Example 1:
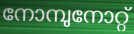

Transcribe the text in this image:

നോമ്പുനോറ്റ്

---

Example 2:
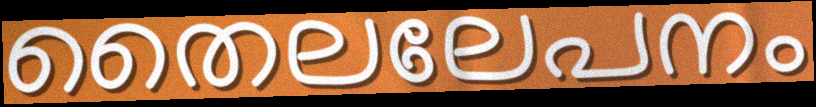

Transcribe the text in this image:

തൈലലേപനം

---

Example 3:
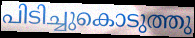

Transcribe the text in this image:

പിടിച്ചുകൊടുത്തു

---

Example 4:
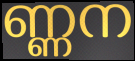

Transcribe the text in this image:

ണ്ണന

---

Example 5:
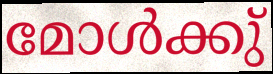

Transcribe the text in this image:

മോൾക്കു്